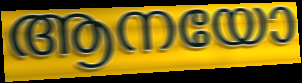
ആനയോ